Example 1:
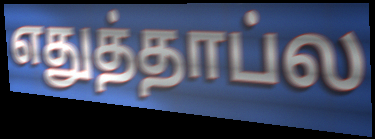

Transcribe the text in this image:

எதுத்தாப்ல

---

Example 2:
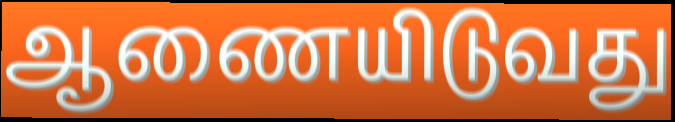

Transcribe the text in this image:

ஆணையிடுவது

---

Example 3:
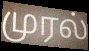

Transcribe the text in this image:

முரல்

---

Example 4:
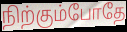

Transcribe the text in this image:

நிற்கும்போதே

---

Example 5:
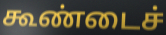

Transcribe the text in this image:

கூண்டைச்